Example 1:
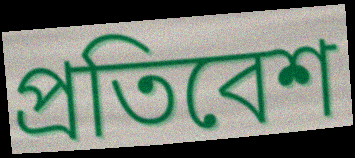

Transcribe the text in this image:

প্রতিবেশ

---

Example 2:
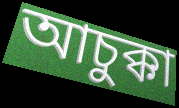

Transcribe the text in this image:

আচুক্কা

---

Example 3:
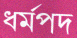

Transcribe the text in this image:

ধর্মপদ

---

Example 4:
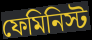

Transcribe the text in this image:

ফেমিনিস্ট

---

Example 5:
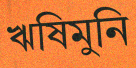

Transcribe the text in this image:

ঋষিমুনি